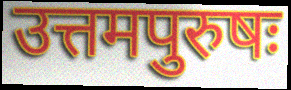
उत्तमपुरुषः